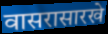
वासरासारखे